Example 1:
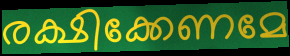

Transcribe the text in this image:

രക്ഷിക്കേണമേ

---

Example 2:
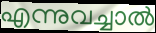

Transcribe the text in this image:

എന്നുവച്ചാൽ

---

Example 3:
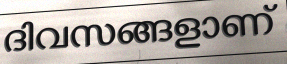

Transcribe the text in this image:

ദിവസങ്ങളാണ്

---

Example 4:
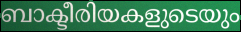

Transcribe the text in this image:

ബാക്ടീരിയകളുടെയും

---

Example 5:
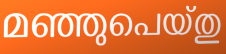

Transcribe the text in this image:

മഞ്ഞുപെയ്തു